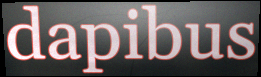
dapibus